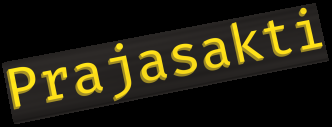
Prajasakti